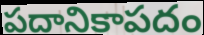
పదానికాపదం